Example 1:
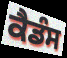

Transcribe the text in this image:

ਕੈਡੰਸ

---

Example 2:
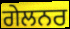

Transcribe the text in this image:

ਗੇਲਨਰ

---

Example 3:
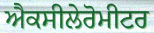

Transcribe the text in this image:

ਐਕਸੀਲੇਰੋਮੀਟਰ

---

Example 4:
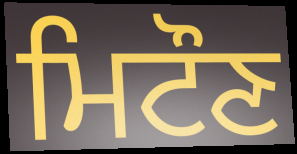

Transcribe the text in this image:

ਮਿਟੌਣ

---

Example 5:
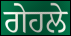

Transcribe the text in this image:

ਗੇਹਲੇ